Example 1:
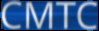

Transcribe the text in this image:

CMTC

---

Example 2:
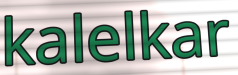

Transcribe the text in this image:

kalelkar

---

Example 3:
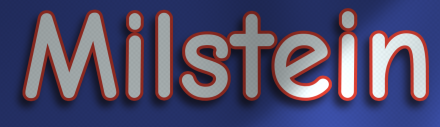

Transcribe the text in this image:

Milstein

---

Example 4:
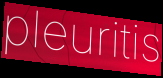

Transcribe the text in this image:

pleuritis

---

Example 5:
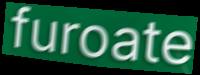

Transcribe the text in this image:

furoate